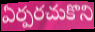
ఏర్పరచుకొని